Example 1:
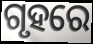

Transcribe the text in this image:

ଗୃହରେ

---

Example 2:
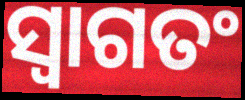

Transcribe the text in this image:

ସ୍ୱାଗତଂ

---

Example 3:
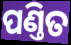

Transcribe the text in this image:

ପଣ୍ତିତ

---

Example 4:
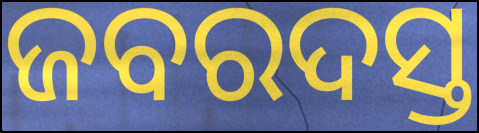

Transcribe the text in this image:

ଜବରଦସ୍ତ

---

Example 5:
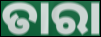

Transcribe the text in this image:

ତାରା